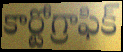
కార్టోగ్రాఫిక్